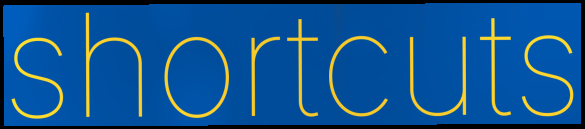
shortcuts